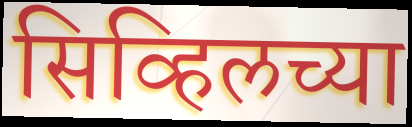
सिव्हिलच्या